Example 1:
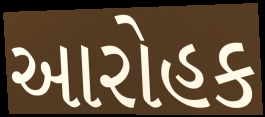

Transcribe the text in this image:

આરોહક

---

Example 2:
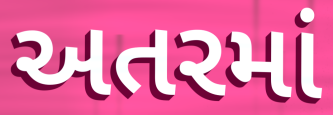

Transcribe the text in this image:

અતરમાં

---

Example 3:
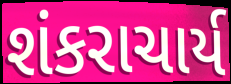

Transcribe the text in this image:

શંકરાચાર્ય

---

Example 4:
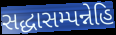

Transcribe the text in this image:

સદ્ધાસમ્પન્નેહિ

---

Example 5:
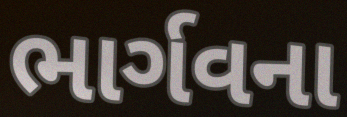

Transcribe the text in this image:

ભાર્ગવના